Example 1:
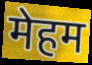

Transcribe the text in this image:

मेहम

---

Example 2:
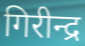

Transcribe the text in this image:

गिरीन्द्र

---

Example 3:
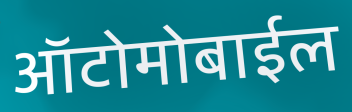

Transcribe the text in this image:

ऑटोमोबाईल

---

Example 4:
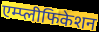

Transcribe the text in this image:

एम्प्लीफिकेशन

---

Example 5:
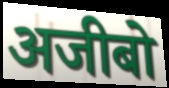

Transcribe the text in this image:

अजीबो